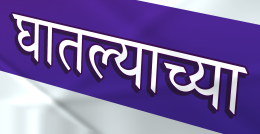
घातल्याच्या